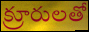
క్రూరులతో